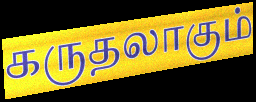
கருதலாகும்